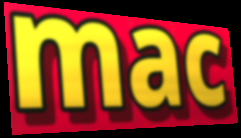
mac